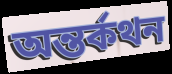
অন্তর্কথন